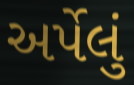
અર્પેલું